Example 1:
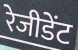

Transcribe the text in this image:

रेजीडेंट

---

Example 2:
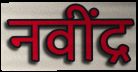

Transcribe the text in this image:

नवींद्र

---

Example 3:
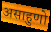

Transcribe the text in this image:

असाहुणो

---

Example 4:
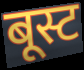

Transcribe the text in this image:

बूस्ट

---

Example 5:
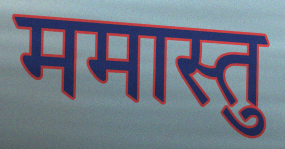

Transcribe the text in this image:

ममास्तु